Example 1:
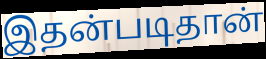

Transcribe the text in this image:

இதன்படிதான்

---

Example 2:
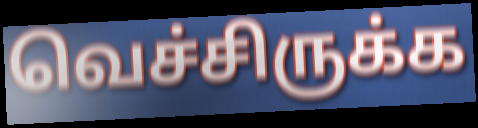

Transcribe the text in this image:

வெச்சிருக்க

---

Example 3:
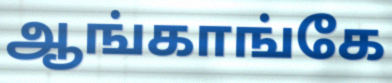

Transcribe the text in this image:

ஆங்காங்கே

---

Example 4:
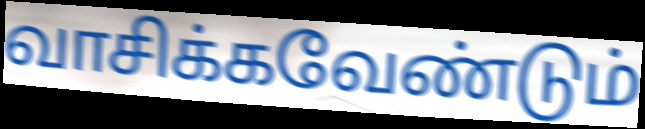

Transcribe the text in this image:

வாசிக்கவேண்டும்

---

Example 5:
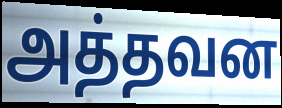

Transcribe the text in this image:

அத்தவன